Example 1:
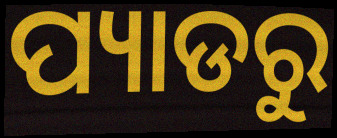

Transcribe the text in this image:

ପ୍ୟାଡରୁ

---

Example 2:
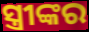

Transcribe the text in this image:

ସ୍ତ୍ରୀଙ୍କର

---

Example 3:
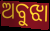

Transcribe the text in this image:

ଅବୁଝା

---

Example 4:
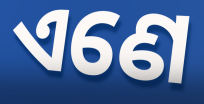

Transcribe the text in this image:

ଏଣେ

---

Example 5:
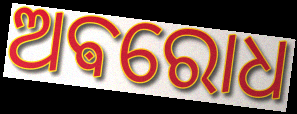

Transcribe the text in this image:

ଅଵରୋଧ